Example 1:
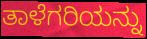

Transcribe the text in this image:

ತಾಳೆಗರಿಯನ್ನು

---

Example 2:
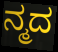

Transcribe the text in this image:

ನ್ಮದ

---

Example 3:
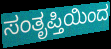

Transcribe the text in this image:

ಸಂತೃಪ್ತಿಯಿಂದ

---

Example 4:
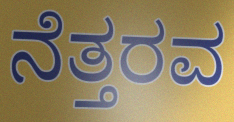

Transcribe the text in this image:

ನೆತ್ತರವ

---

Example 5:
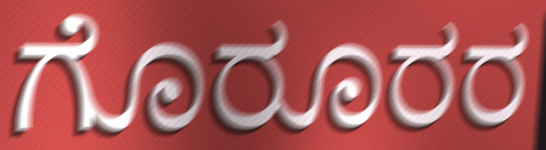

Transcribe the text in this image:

ಗೊರೂರರ